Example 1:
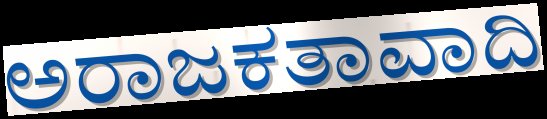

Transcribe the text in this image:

ಅರಾಜಕತಾವಾದಿ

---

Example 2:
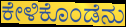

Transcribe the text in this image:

ಕೇಳಿಕೊಂಡೆನು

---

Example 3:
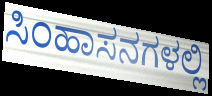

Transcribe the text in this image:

ಸಿಂಹಾಸನಗಳಲ್ಲಿ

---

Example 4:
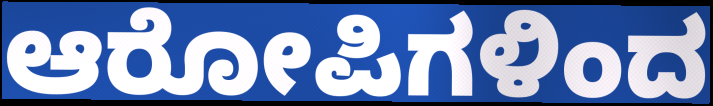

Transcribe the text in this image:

ಆರೋಪಿಗಳಿಂದ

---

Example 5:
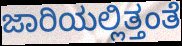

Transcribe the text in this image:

ಜಾರಿಯಲ್ಲಿತ್ತಂತೆ